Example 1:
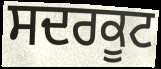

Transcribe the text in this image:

ਸਦਰਕੂਟ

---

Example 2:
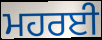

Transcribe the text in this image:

ਮਹਰਈ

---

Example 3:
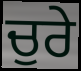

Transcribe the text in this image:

ਚੁਰੇ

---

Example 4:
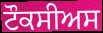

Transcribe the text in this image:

ਟੌਕਸੀਅਸ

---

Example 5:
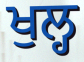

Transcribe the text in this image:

ਖੁਲ੍ਹ